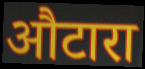
औटारा